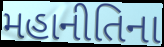
મહાનીતિના